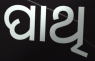
ପାଥି